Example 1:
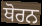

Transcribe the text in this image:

ਥੋਰਨ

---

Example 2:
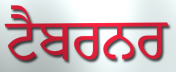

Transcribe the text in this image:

ਟੈਬਰਨਰ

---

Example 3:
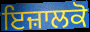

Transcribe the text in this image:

ਇਜ਼ਾਲਕੋ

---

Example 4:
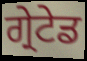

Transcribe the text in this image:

ਗ੍ਰੇਟੇਡ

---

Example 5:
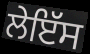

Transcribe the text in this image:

ਲੇਇੱਸ